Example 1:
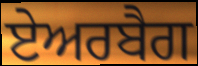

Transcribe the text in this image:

ਏਅਰਬੈਗ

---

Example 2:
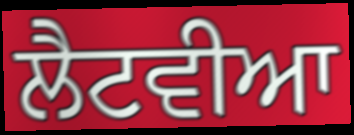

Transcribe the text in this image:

ਲੈਟਵੀਆ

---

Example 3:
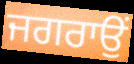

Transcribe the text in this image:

ਜਗਰਾਉਂ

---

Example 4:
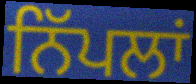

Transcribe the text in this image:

ਨਿੱਪਲਾਂ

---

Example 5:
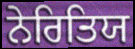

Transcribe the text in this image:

ਨੇਰਿਤਿਯ